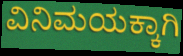
ವಿನಿಮಯಕ್ಕಾಗಿ